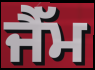
ਜੈੱਮ